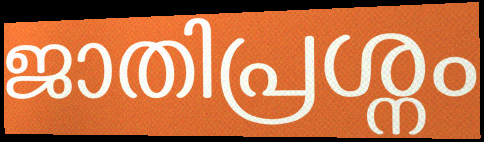
ജാതിപ്രശ്നം